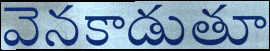
వెనకాడుతూ